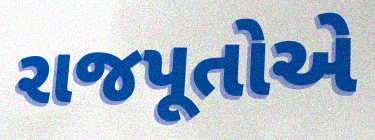
રાજપૂતોએ